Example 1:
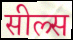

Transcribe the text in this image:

सील्स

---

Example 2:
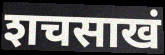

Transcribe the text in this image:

शचसाखं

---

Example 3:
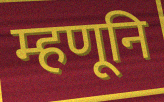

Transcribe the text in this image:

म्हणूनि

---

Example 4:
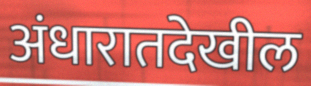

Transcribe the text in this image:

अंधारातदेखील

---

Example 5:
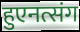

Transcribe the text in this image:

हुएनत्संग